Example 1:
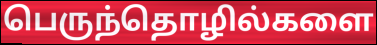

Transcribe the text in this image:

பெருந்தொழில்களை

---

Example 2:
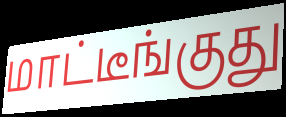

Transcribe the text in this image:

மாட்டீங்குது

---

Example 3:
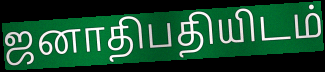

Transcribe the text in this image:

ஜனாதிபதியிடம்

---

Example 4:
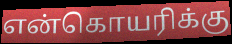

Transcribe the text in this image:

என்கொயரிக்கு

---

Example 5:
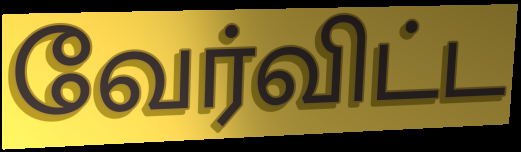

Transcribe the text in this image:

வேர்விட்ட